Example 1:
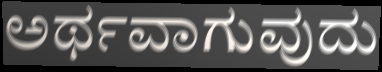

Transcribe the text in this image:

ಅರ್ಥವಾಗುವುದು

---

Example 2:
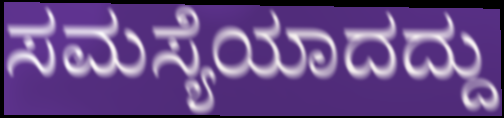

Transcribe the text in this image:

ಸಮಸ್ಯೆಯಾದದ್ದು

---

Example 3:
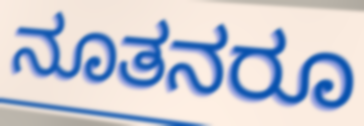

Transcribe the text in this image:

ನೂತನರೂ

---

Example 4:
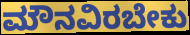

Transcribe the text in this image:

ಮೌನವಿರಬೇಕು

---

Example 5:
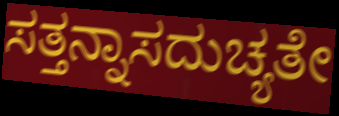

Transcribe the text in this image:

ಸತ್ತನ್ನಾಸದುಚ್ಯತೇ